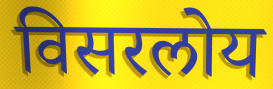
विसरलोय